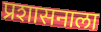
प्रशासनाला